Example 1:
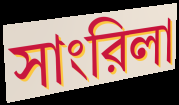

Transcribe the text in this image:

সাংরিলা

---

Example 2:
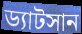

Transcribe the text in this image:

ড্যাটসান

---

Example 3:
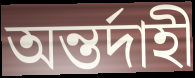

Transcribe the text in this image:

অন্তর্দাহী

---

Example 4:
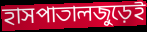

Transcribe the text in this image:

হাসপাতালজুড়েই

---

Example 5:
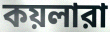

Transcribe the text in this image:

কয়লারা